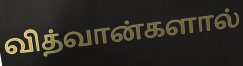
வித்வான்களால்